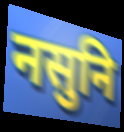
नसुनि